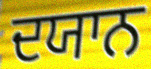
ਦਯਾਨ